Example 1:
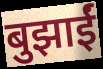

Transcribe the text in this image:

बुझाईं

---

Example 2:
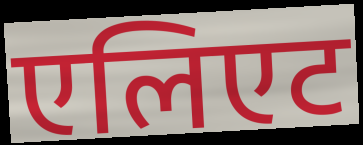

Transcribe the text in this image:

एलिएट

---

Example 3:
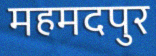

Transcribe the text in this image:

महमदपुर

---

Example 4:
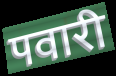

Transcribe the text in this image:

पवारी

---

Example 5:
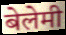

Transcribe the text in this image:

बेलेमी